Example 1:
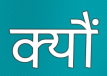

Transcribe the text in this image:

क्यौं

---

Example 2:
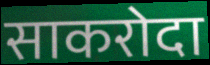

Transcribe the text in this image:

साकरोदा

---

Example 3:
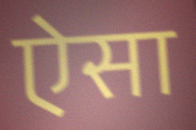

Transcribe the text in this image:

ऐेसा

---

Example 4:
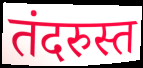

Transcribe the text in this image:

तंदरुस्त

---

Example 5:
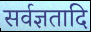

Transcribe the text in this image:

सर्वज्ञतादि